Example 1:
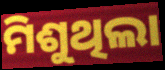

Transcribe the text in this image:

ମିଶୁଥିଲା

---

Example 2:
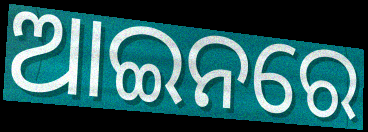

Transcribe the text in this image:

ଆଇନରେ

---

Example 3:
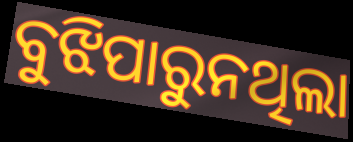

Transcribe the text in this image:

ବୁଝିପାରୁନଥିଲା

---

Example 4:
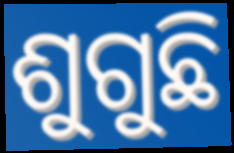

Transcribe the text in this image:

ଶୁଗୁଛି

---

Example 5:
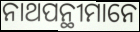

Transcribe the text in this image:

ନାଥପନ୍ଥୀମାନେ